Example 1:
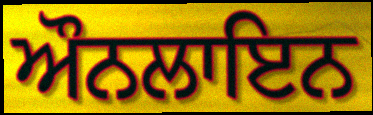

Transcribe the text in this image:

ਔਨਲਾਇਨ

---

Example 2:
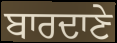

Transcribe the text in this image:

ਬਾਰਦਾਣੇ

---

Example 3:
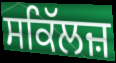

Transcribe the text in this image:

ਸਕਿੱਲਜ਼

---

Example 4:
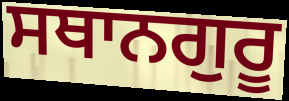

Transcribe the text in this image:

ਸਥਾਨਗੁਰੂ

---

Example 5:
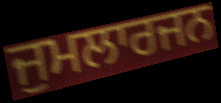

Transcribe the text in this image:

ਜੁਮਲਾਰਜਨ